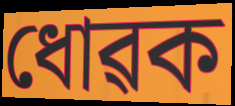
ধোৱক